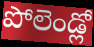
పోలెండ్లో